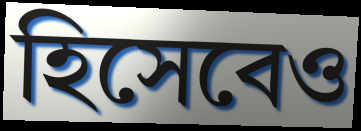
হিসেবেও